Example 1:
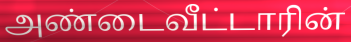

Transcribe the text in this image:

அண்டைவீட்டாரின்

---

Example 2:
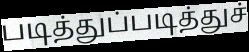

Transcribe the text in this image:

படித்துப்படித்துச்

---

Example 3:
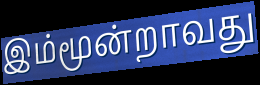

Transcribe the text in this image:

இம்மூன்றாவது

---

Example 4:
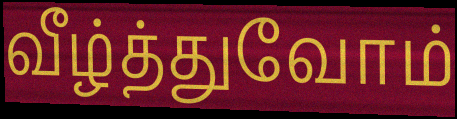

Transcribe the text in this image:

வீழ்த்துவோம்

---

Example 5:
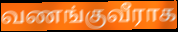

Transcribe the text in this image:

வணங்குவீராக